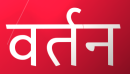
वर्तन